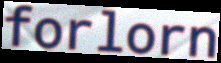
forlorn